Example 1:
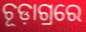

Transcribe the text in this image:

ଚୂଡ଼ାଗ୍ରରେ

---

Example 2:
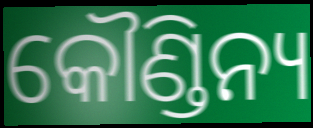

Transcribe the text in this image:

କୌଣ୍ଡିନ୍ୟ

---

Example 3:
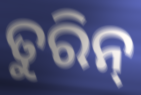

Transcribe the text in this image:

ତୁରିନ୍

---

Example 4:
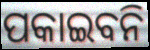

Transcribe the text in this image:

ପକାଇବନି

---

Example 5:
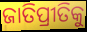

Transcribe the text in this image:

ଜାତିପ୍ରୀତିକୁ